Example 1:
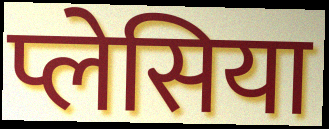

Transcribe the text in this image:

प्लेसिया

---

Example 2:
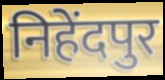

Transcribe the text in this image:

निहेंदपुर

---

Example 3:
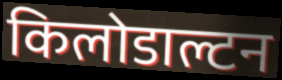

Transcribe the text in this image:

किलोडाल्टन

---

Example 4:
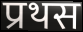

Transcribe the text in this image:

प्रथस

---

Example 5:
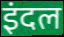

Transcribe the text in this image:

इंदल